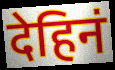
देहिनं